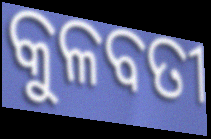
କୁଳବତୀ